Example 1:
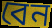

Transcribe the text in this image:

বেন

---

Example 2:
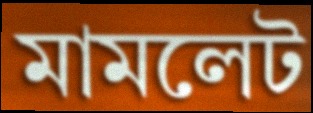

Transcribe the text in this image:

মামলেট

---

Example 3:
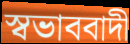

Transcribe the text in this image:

স্বভাববাদী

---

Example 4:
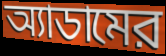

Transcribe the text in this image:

অ্যাডামের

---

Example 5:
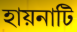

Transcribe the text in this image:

হায়নাটি